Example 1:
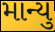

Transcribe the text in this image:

માન્યુ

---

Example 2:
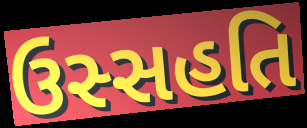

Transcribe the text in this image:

ઉસ્સહતિ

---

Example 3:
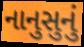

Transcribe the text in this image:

નાનુસુનું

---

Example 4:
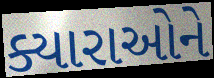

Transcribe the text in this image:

ક્યારાઓને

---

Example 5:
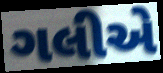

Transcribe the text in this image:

ગલીએ